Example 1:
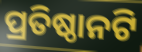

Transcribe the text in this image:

ପ୍ରତିଷ୍ଠାନଟି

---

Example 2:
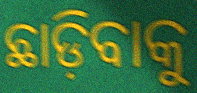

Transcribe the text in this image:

ଛାଡ଼ିବାକୁ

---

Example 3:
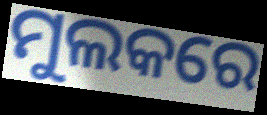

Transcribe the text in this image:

ମୁଲକରେ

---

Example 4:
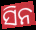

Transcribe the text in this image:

ସିନ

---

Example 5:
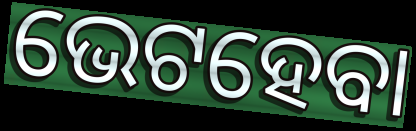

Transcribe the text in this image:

ଭେଟହେବା